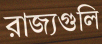
রাজ্যগুলি